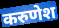
करुणेश